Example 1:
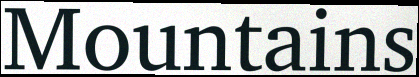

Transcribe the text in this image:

Mountains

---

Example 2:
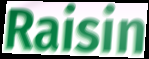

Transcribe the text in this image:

Raisin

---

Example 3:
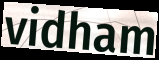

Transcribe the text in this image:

vidham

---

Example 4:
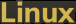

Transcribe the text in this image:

Linux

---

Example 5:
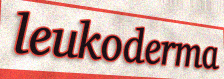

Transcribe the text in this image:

leukoderma